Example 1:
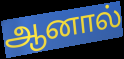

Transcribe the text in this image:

ஆனால்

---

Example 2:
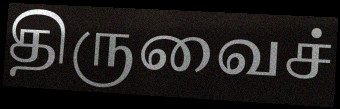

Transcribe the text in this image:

திருவைச்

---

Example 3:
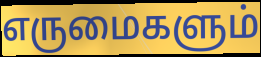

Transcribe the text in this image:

எருமைகளும்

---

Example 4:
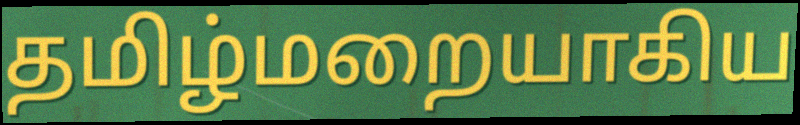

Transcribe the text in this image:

தமிழ்மறையாகிய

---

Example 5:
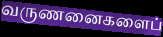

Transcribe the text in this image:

வருணனைகளைப்